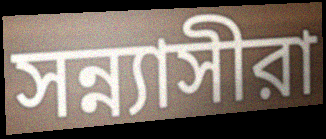
সন্ন্যাসীরা